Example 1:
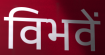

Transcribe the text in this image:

विभवें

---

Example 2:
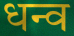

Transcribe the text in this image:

धन्व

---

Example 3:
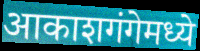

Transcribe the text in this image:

आकाशगंगेमध्ये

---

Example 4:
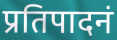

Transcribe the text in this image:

प्रतिपादनं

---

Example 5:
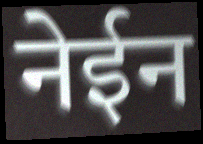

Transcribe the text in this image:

नेईन